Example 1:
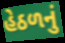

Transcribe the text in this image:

હેઠળનું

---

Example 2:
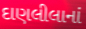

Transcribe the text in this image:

દાણલીલાનાં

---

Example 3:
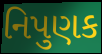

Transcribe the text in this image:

નિપુણક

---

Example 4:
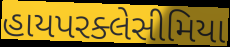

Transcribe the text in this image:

હાયપરક્લેસીમિયા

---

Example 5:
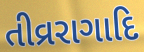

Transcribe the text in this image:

તીવ્રરાગાદિ